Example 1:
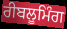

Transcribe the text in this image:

ਰੀਬਲੂਮਿੰਗ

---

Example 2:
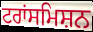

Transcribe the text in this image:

ਟਰਾਂਸਮਿਸ਼ਨ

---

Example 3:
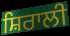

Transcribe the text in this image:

ਸ਼ਿਰਾਲੀ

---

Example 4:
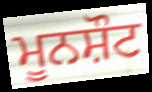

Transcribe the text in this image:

ਮੂਨਸ਼ੌਟ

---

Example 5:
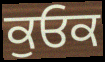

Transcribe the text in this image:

ਕੁਓਕ